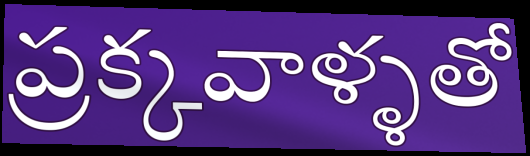
ప్రక్కవాళ్ళతో